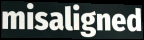
misaligned